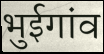
भुईगांव